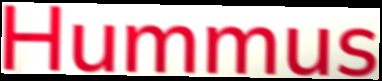
Hummus